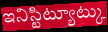
ఇనిస్టిట్యూట్కు